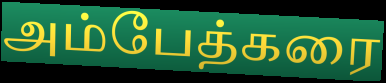
அம்பேத்கரை